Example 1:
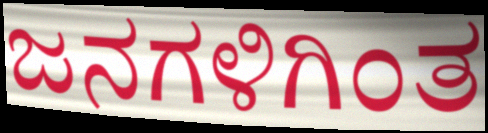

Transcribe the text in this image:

ಜನಗಳಿಗಿಂತ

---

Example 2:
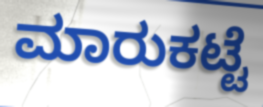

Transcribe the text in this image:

ಮಾರುಕಟ್ಟೆ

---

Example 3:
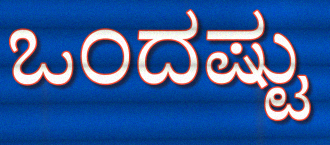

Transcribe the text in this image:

ಒಂದಷ್ಟು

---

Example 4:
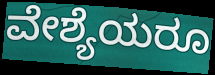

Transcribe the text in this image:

ವೇಶ್ಯೆಯರೂ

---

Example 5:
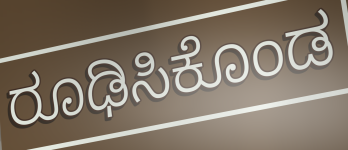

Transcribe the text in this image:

ರೂಢಿಸಿಕೊಂಡ